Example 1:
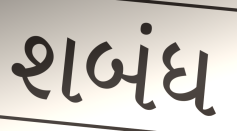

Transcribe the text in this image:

શબંધ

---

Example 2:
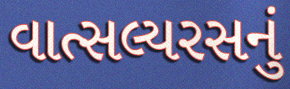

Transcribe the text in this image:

વાત્સલ્યરસનું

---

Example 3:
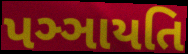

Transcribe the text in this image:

પઞ્ઞાયતિ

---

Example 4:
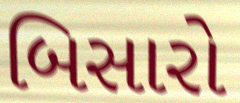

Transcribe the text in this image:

બિસારો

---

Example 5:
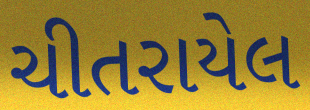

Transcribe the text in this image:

ચીતરાયેલ